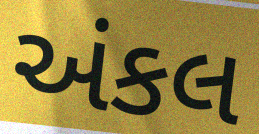
અંકલ